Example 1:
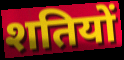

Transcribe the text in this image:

शतियों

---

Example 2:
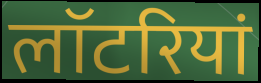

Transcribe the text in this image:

लॉटरियां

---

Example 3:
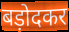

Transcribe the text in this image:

बड़ोदकर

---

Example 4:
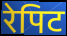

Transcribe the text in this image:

रेपिट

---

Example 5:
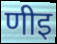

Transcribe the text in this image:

णीइ